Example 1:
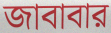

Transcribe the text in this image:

জাবাবার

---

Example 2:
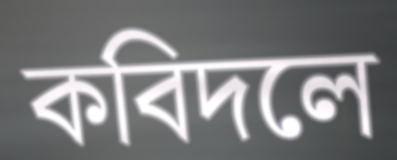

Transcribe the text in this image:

কবিদলে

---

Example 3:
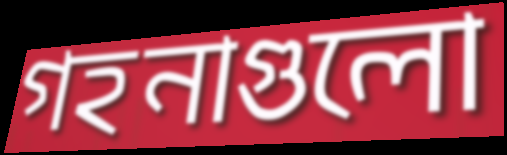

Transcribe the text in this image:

গহনাগুলো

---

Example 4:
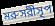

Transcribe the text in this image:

মরুসরীসৃপ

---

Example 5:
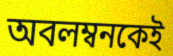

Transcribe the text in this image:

অবলম্বনকেই